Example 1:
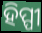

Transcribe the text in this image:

ହିପ୍ପୀ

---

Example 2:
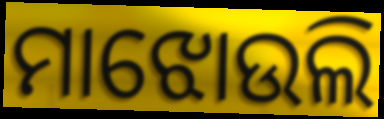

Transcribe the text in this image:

ମାଝୋଉଲି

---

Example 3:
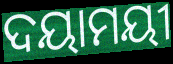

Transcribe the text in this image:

ଦୟାମୟୀ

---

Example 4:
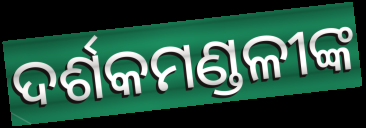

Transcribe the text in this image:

ଦର୍ଶକମଣ୍ଡଳୀଙ୍କ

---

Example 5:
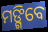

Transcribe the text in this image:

ମଙ୍ଗିବେ